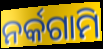
ନର୍କଗାମି